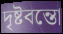
দৃষ্টবন্তো